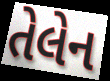
તેલેન